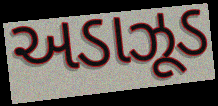
અડાઝૂડ